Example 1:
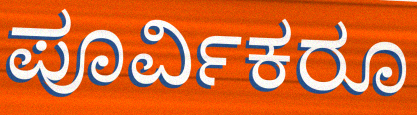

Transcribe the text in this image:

ಪೂರ್ವಿಕರೂ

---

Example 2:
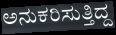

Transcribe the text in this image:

ಅನುಕರಿಸುತ್ತಿದ್ದ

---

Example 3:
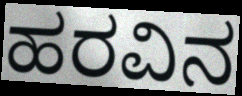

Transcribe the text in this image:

ಹರವಿನ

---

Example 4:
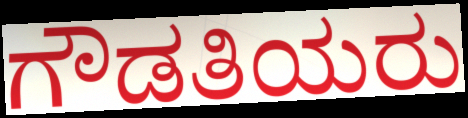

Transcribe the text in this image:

ಗೌಡತಿಯರು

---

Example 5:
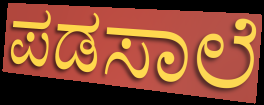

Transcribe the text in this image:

ಪಡಸಾಲೆ